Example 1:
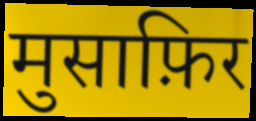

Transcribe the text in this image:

मुसाफ़िर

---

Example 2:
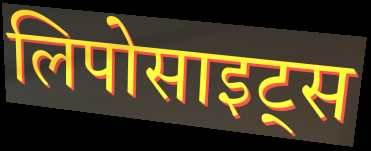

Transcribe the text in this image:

लिपोसाइट्स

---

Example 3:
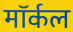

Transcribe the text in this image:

मॉर्कल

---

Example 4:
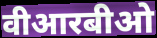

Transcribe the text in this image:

वीआरबीओ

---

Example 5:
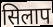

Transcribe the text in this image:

सिलाप